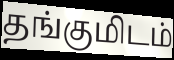
தங்குமிடம்